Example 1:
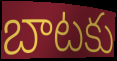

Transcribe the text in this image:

బాటకు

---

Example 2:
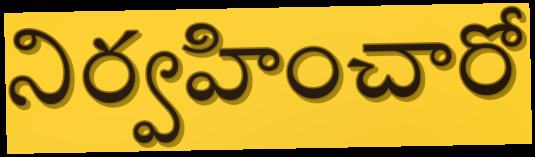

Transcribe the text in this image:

నిర్వహించారో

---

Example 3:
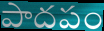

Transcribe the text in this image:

పాదపం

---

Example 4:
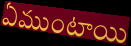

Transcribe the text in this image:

ఏముంటాయి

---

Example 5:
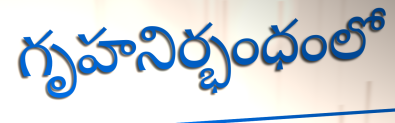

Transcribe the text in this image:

గృహనిర్భంధంలో